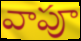
వాపూ